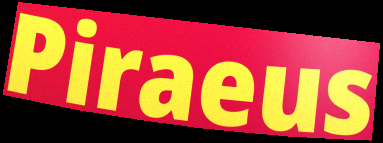
Piraeus